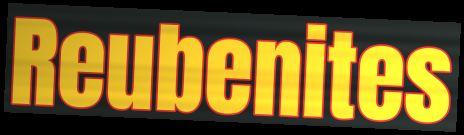
Reubenites